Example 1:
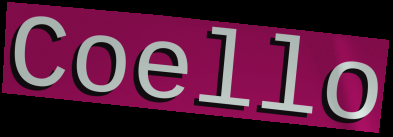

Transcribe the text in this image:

Coello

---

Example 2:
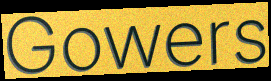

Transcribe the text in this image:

Gowers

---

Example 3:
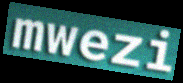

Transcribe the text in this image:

mwezi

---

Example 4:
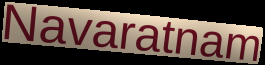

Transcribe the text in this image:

Navaratnam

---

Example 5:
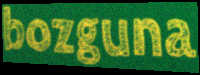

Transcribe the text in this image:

bozguna